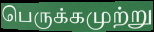
பெருக்கமுற்று